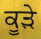
ਕੂਡ਼ੇ